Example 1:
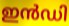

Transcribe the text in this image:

ഇൻഡി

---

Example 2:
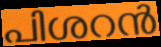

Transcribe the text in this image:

പിശറൻ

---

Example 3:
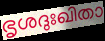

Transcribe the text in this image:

ഭൃശദുഃഖിതാ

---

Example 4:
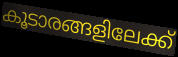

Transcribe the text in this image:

കൂടാരങ്ങളിലേക്ക്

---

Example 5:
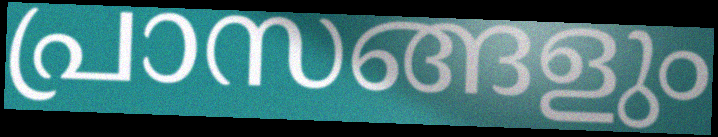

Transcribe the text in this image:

പ്രാസങ്ങളും